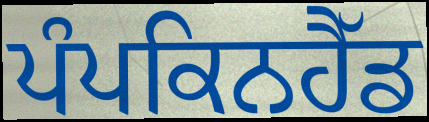
ਪੰਪਕਿਨਹੈੱਡ